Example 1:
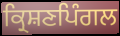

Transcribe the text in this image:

ਕ੍ਰਿਸ਼ਣਪਿੰਗਲ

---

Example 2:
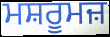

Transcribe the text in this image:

ਮਸ਼ਰੂਮਜ਼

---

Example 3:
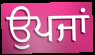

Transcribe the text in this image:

ਉਪਜਾਂ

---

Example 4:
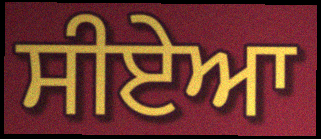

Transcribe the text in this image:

ਸੀਏਆ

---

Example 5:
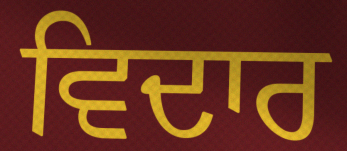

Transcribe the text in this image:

ਵਿਦਾਰ